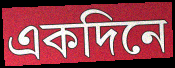
একদিনে